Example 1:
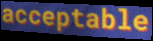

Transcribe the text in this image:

acceptable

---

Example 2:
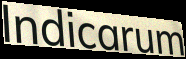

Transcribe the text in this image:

Indicarum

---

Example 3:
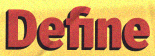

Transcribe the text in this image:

Define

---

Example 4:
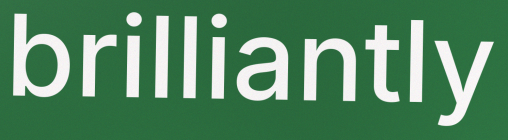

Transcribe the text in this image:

brilliantly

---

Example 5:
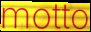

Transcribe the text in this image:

motto